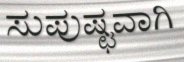
ಸುಪುಷ್ಟವಾಗಿ